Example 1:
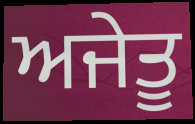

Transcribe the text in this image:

ਅਜੇਤੂ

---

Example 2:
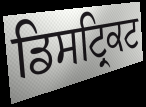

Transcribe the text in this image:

ਡਿਸਟ੍ਰਿਕਟ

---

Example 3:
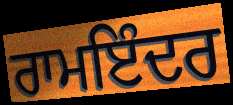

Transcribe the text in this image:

ਰਾਮਇੰਦਰ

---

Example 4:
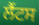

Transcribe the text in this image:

ਲੈਂਟਸ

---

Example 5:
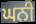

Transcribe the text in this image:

ਘਨੀ